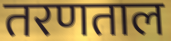
तरणताल